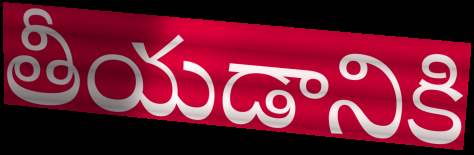
తీయడానికి